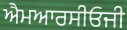
ਐਮਆਰਸੀਓਜੀ